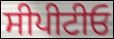
ਸੀਪੀਟੀਓ